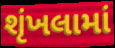
શૃંખલામાં